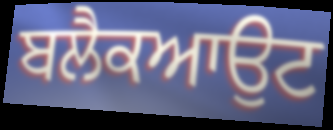
ਬਲੈਕਆਉਟ